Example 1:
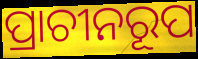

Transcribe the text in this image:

ପ୍ରାଚୀନରୂପ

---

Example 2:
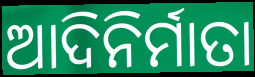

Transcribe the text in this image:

ଆଦିନିର୍ମାତା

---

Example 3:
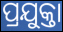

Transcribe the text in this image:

ପ୍ରଯୁକ୍ତା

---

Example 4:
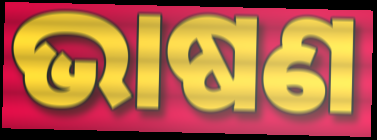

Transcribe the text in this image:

ଭାଷଣ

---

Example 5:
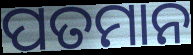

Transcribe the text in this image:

ପତମାନ